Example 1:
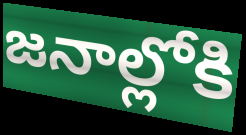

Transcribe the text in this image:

జనాల్లోకి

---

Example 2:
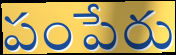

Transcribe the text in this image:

పంపేరు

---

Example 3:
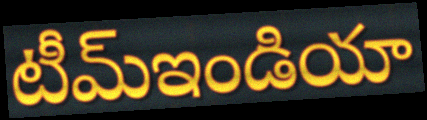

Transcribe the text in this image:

టీమ్ఇండియా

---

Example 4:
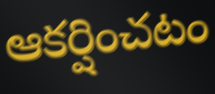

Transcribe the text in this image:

ఆకర్షించటం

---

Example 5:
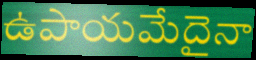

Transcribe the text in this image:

ఉపాయమేదైనా